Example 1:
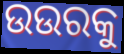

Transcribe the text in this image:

ଉଉରକୁ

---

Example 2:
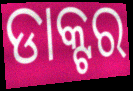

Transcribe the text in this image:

ଡାକ୍ଟର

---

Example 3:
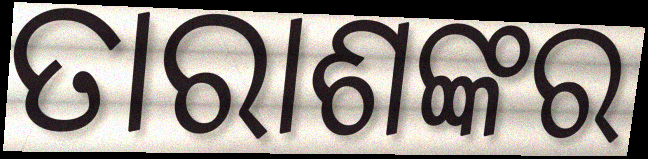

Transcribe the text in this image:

ତାରାଶଙ୍କର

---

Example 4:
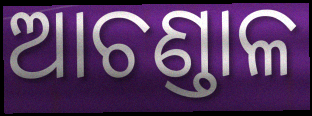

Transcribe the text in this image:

ଆଚଣ୍ଡାଳ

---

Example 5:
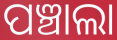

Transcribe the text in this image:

ପଞ୍ଚାଲା